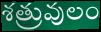
శత్రువులం